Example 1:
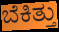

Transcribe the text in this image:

ಬೆಕಿತ್ತು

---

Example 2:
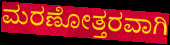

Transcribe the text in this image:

ಮರಣೋತ್ತರವಾಗಿ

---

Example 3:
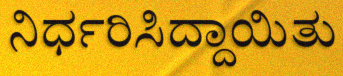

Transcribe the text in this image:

ನಿರ್ಧರಿಸಿದ್ದಾಯಿತು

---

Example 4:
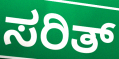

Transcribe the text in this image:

ಸರಿತ್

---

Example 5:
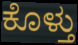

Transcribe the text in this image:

ಕೊಳ್ತು